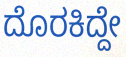
ದೊರಕಿದ್ದೇ